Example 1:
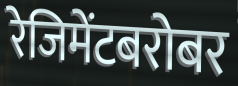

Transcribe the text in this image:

रेजिमेंटबरोबर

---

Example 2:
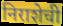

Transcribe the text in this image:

निराशेची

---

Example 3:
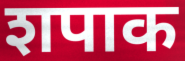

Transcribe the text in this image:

शपाक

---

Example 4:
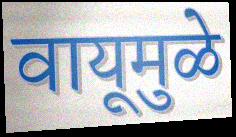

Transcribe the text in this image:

वायूमुळे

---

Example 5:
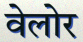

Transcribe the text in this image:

वेलोर